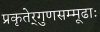
प्रकृतेर्गुणसम्मूढाः